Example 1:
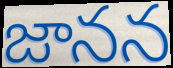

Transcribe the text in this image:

జానన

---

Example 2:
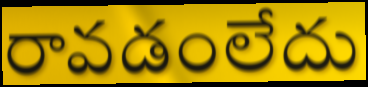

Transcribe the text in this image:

రావడంలేదు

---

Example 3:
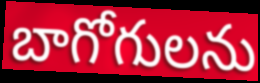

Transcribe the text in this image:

బాగోగులను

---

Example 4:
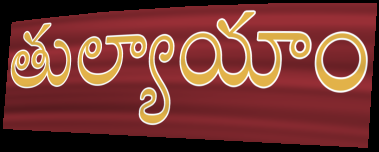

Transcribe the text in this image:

తుల్యాయాం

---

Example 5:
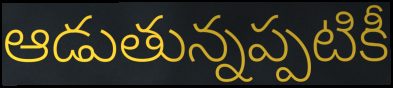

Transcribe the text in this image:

ఆడుతున్నప్పటికీ